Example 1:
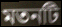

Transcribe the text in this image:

মতনটি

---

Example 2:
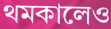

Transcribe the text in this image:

থমকালেও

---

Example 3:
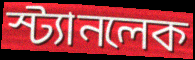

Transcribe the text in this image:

স্ট্যানলেক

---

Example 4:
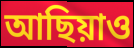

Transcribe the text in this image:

আছিয়াও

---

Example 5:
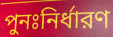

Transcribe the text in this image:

পুনঃনির্ধারণ